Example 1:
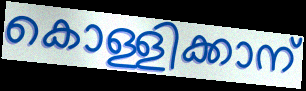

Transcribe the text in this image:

കൊള്ളിക്കാന്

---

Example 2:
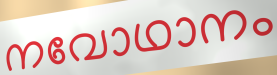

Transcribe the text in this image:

നവോഥാനം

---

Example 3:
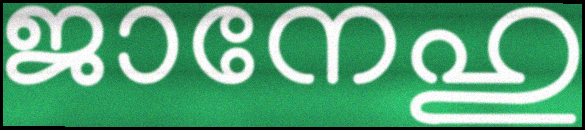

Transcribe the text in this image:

ജാനേഹു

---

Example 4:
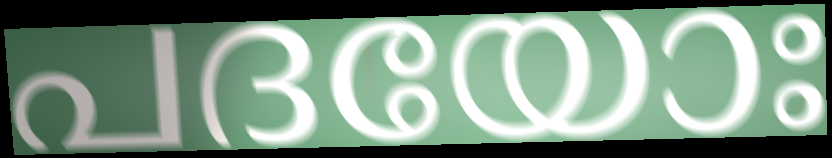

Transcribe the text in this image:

പദയോഃ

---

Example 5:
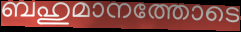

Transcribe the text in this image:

ബഹുമാനത്തോടെ